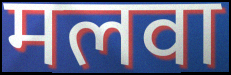
मलवा